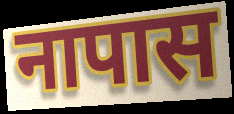
नापास